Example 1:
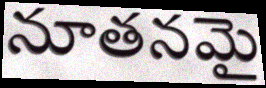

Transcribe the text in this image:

నూతనమై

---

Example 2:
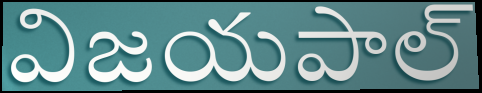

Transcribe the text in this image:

విజయపాల్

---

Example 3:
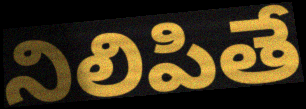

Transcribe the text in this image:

నిలిపితే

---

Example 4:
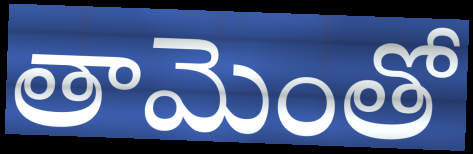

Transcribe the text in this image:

తామెంతో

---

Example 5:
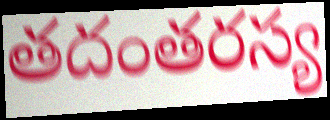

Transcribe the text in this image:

తదంతరస్య